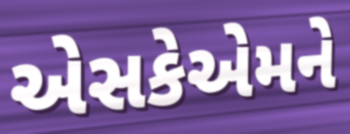
એસકેએમને